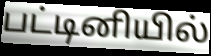
பட்டினியில்